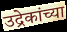
उद्रेकांच्या